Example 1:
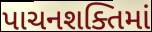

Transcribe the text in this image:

પાચનશક્તિમાં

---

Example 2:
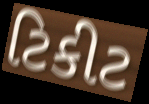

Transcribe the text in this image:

ટિકીટ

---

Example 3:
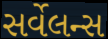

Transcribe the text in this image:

સર્વેલન્સ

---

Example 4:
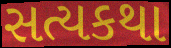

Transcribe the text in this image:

સત્યકથા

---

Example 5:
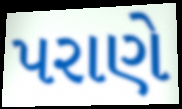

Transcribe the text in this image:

પરાણે